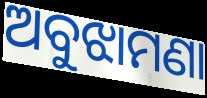
ଅବୁଝାମଣା